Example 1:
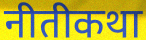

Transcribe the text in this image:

नीतीकथा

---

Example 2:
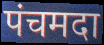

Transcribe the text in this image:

पंचमदा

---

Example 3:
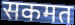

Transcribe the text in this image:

सकमत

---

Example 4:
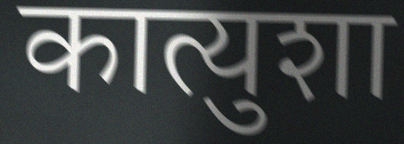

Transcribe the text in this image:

कात्युशा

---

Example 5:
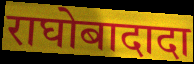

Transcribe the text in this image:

राघोबादादा